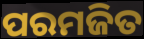
ପରମଜିତ